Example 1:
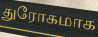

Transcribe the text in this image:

துரோகமாக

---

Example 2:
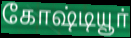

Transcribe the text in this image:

கோஷ்டியூர்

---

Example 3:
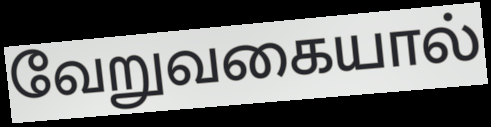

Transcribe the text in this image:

வேறுவகையால்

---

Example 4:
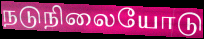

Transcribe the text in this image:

நடுநிலையோடு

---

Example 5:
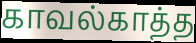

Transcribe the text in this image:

காவல்காத்த